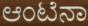
ಆಂಟೆನಾ